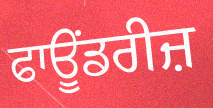
ਫਾਊਂਡਰੀਜ਼